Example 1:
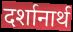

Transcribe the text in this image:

दर्शानार्थ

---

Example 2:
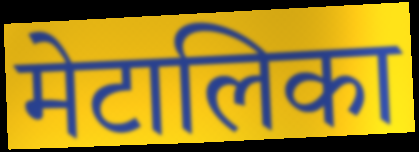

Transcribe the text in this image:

मेटालिका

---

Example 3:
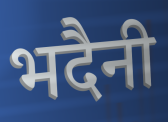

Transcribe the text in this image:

भदैनी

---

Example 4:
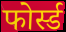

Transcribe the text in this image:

फोर्स्ड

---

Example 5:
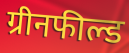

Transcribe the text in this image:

ग्रीनफील्ड